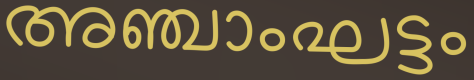
അഞ്ചാംഘട്ടം